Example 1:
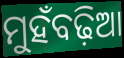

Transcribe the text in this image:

ମୁହଁବଢ଼ିଆ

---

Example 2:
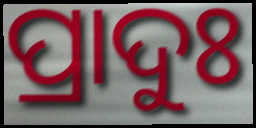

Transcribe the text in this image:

ପ୍ରାଦୁଃ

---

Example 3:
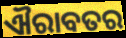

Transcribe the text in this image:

ଐରାବତର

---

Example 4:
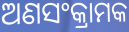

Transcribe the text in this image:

ଅଣସଂକ୍ରାମକ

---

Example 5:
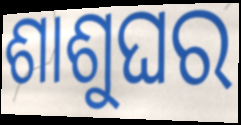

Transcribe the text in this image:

ଶାଶୁଘର